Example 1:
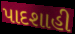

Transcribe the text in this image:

પાદશાહી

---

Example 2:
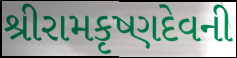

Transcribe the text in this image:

શ્રીરામકૃષ્ણદેવની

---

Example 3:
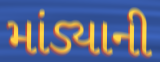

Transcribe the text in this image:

માંડ્યાની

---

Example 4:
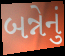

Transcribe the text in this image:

બન્નેનું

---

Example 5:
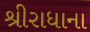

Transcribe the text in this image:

શ્રીરાધાના